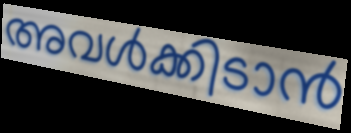
അവൾക്കിടാൻ